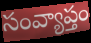
సంవ్యాప్తం